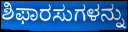
ಶಿಫಾರಸುಗಳನ್ನು